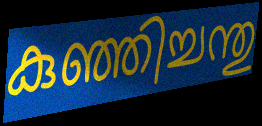
കുഞ്ഞിച്ചന്തു